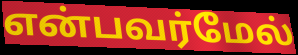
என்பவர்மேல்